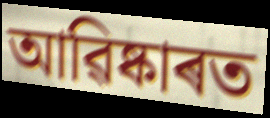
আৱিষ্কাৰত